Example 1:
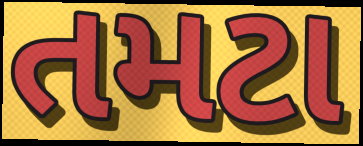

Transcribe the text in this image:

તમટા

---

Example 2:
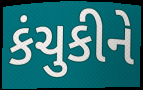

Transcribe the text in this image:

કંચુકીને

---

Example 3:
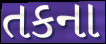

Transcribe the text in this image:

તકના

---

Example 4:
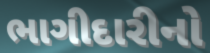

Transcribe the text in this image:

ભાગીદારીનો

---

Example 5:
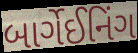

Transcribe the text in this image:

બાર્ગેઈનિંગ